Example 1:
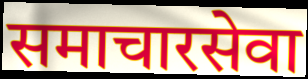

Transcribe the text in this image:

समाचारसेवा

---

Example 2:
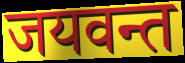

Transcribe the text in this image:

जयवन्त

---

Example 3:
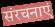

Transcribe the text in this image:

संरचनाएं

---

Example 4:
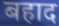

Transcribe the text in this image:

बहाद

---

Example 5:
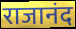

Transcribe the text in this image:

राजानंद